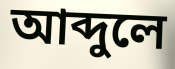
আব্দুলে